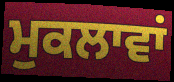
ਮੁਕਲਾਵਾਂ